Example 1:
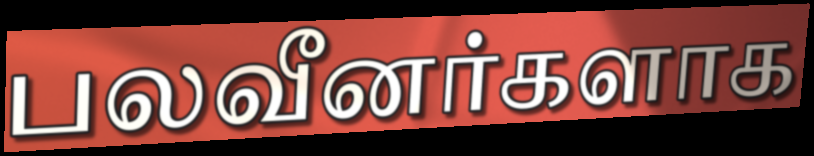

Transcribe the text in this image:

பலவீனர்களாக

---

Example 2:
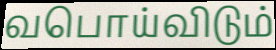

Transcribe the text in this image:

வபொய்விடும்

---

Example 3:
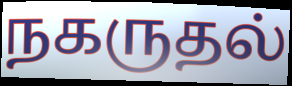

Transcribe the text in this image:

நகருதல்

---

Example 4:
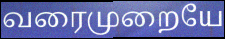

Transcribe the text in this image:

வரைமுறையே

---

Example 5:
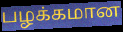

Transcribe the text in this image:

பழக்கமான